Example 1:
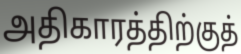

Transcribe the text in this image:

அதிகாரத்திற்குத்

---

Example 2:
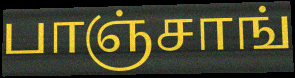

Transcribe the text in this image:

பாஞ்சாங்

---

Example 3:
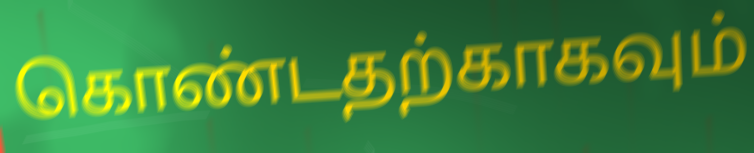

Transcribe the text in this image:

கொண்டதற்காகவும்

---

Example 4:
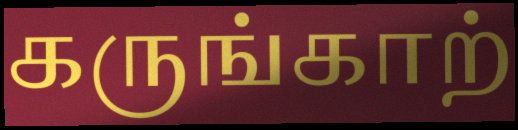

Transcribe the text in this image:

கருங்காற்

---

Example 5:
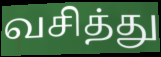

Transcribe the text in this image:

வசித்து